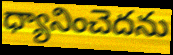
ధ్యానించెదను